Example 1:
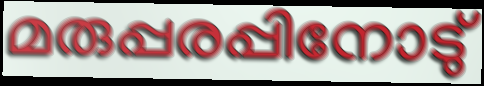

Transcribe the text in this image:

മരുപ്പരപ്പിനോടു്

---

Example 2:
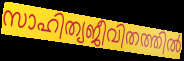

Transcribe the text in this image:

സാഹിത്യജീവിതത്തിൽ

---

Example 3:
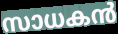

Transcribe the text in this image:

സാധകൻ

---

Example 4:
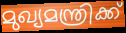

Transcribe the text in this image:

മുഖ്യമന്ത്രിക്ക്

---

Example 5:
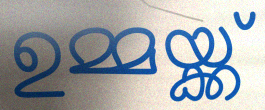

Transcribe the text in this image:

ഉമ്മയ്ക്ക്